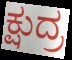
ಕ್ಷುದ್ರ